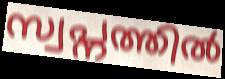
സ്വപ്നത്തിൽ